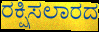
ರಕ್ಷಿಸಲಾರದ